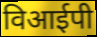
विआईपी